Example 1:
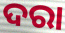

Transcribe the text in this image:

ଦରା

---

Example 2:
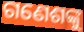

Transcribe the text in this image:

ଗଣେଶଙ୍କୁ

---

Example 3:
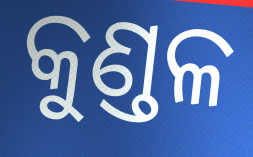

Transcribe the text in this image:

କୁଣ୍ଡଳ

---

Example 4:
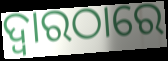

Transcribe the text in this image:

ଦ୍ୱାରଠାରେ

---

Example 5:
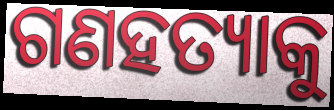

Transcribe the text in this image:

ଗଣହତ୍ୟାକୁ